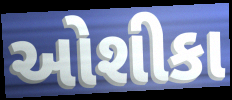
ઓશીકા